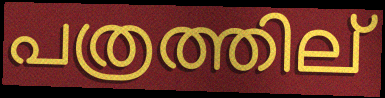
പത്രത്തില്